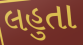
લહુતા